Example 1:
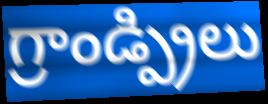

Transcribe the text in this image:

గ్రాండ్ప్రిలు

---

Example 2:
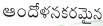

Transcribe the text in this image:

ఆందోళనకరమైన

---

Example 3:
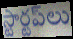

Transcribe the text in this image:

స్టార్టప్‌లు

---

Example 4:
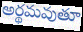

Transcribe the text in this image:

అర్థమవుతూ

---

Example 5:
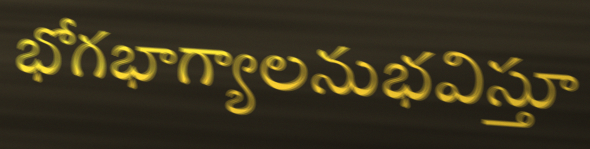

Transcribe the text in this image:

భోగభాగ్యాలనుభవిస్తూ